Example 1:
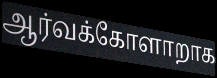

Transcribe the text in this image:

ஆர்வக்கோளாறாக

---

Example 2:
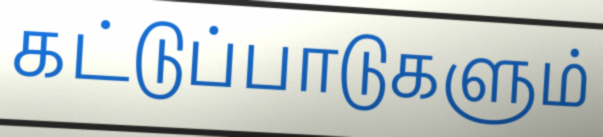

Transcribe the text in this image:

கட்டுப்பாடுகளும்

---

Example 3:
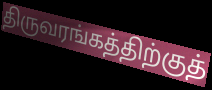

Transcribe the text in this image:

திருவரங்கத்திற்குத்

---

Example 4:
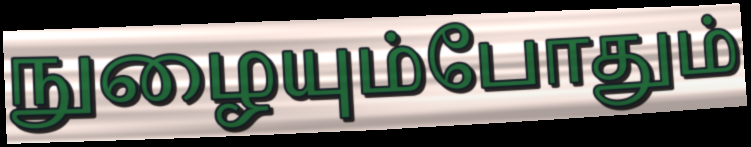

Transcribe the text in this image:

நுழையும்போதும்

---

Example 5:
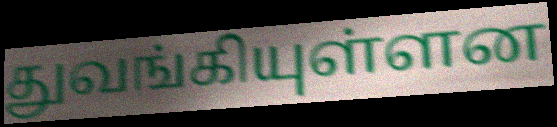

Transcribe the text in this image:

துவங்கியுள்ளன